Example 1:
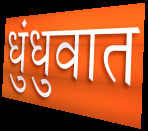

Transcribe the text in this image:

धुंधुवात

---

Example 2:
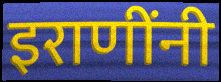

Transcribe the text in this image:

इराणींनी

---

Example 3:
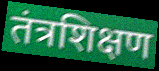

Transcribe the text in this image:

तंत्रशिक्षण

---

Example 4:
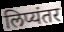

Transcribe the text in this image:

लिप्यंतर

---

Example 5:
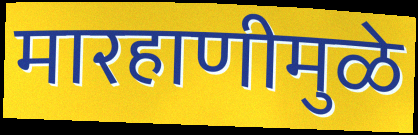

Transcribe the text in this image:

मारहाणीमुळे